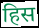
हिस